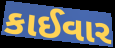
કાઈવાર